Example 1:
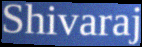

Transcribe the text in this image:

Shivaraj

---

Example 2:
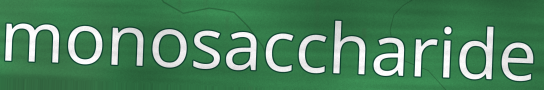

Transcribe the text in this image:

monosaccharide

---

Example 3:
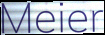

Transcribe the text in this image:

Meier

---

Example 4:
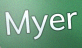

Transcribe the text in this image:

Myer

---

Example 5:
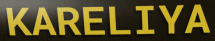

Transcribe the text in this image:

KARELIYA